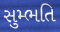
સુમ્ભતિ